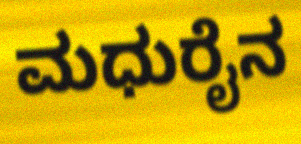
ಮಧುರೈನ